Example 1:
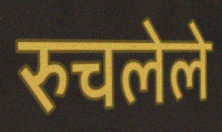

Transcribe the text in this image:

रुचलेले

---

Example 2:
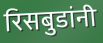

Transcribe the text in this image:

रिसबुडांनी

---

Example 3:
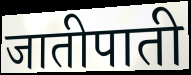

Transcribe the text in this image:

जातीपाती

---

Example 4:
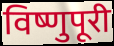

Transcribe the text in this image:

विष्णुपूरी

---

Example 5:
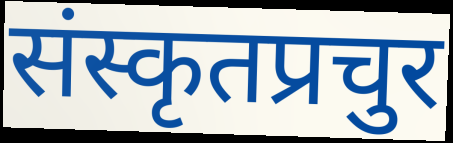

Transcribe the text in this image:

संस्कृतप्रचुर